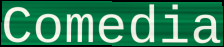
Comedia